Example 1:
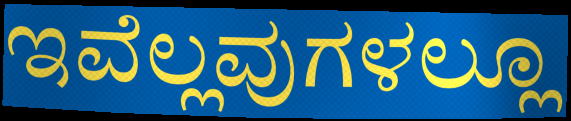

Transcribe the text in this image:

ಇವೆಲ್ಲವುಗಳಲ್ಲೂ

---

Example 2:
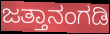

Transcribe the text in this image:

ಜತ್ತಾನಂಗಡಿ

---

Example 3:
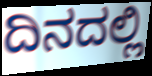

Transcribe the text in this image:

ದಿನದಲ್ಲಿ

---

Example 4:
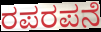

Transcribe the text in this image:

ರಪರಪನೆ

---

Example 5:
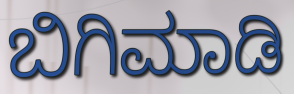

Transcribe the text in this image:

ಬಿಗಿಮಾಡಿ